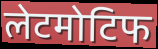
लेटमोटिफ